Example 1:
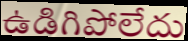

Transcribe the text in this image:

ఉడిగిపోలేదు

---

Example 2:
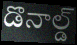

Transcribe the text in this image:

డొనాల్డ్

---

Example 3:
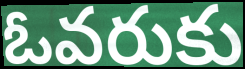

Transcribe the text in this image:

ఓవరుకు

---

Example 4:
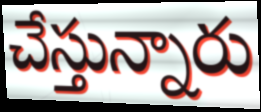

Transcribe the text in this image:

చేస్తున్నారు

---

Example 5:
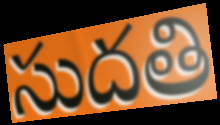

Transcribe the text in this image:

సుదతి